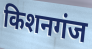
किशनगंज